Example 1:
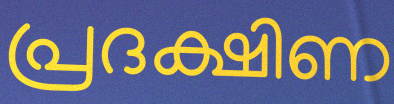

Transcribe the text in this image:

പ്രദക്ഷിണ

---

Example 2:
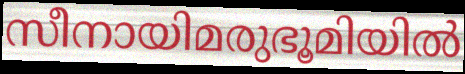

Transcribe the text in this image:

സീനായിമരുഭൂമിയിൽ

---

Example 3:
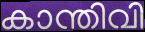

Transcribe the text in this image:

കാന്തിവി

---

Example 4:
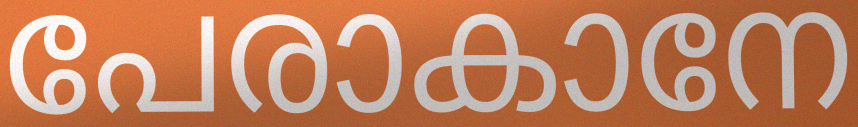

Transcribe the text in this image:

പേരാകാനേ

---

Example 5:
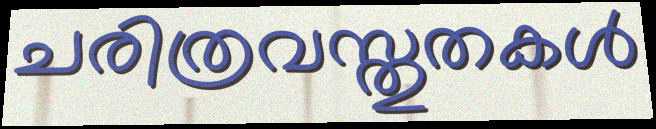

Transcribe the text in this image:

ചരിത്രവസ്തുതകൾ